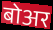
बोअर